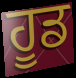
ਹੂਡ